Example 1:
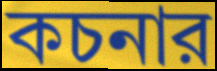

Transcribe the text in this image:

কচনার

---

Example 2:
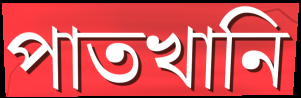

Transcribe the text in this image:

পাতখানি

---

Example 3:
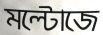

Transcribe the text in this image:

মল্টোজে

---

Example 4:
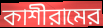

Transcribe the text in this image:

কাশীরামের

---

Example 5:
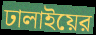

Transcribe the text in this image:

ঢালাইয়ের